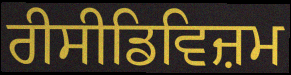
ਰੀਸੀਡਿਵਿਜ਼ਮ